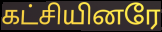
கட்சியினரே